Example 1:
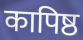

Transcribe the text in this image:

कापिष्ठ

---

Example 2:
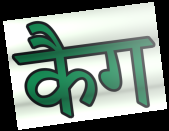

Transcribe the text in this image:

कैग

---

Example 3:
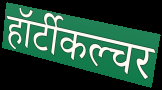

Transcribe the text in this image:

हॉर्टीकल्चर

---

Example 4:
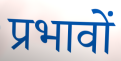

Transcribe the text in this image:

प्रभावों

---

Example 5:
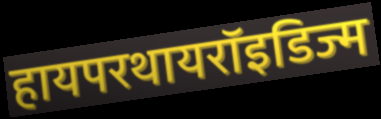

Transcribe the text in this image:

हायपरथायरॉइडिज्म